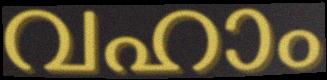
വഹാം